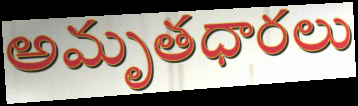
అమృతధారలు